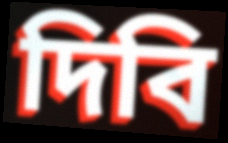
দিবি